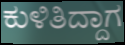
ಕುಳಿತಿದ್ದಾಗ